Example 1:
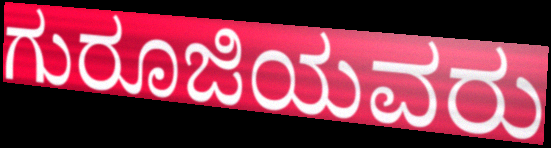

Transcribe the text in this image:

ಗುರೂಜಿಯವರು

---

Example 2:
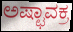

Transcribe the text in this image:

ಅಷ್ಟಾವಕ್ರ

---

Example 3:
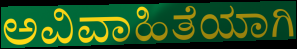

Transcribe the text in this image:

ಅವಿವಾಹಿತೆಯಾಗಿ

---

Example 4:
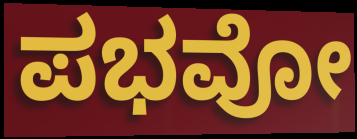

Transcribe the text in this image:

ಪಭವೋ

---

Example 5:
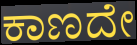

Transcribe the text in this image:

ಕಾಣದೇ